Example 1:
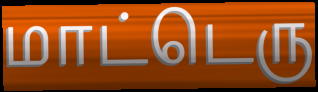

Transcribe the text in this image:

மாட்டெரு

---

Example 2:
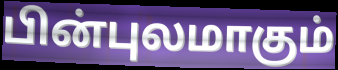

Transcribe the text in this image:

பின்புலமாகும்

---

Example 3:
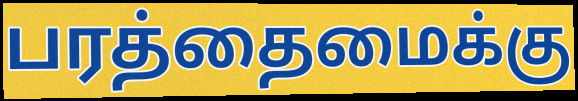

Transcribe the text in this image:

பரத்தைமைக்கு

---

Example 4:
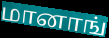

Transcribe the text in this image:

மானாங்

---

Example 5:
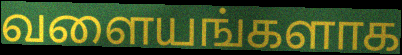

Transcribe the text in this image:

வளையங்களாக